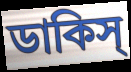
ডাকিস্